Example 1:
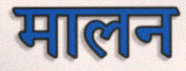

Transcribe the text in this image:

मालन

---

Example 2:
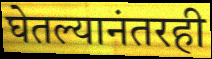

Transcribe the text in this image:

घेतल्यानंतरही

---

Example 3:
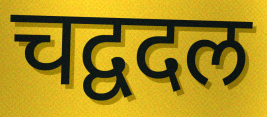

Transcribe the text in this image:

चद्वदल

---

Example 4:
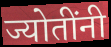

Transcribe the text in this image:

ज्योतींनी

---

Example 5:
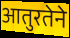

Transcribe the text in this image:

आतुरतेने